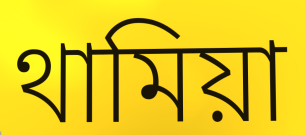
থামিয়া